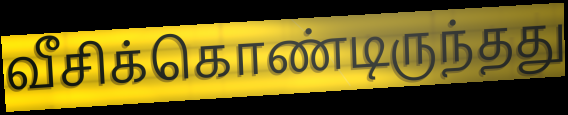
வீசிக்கொண்டிருந்தது